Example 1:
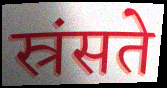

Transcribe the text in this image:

स्रंसते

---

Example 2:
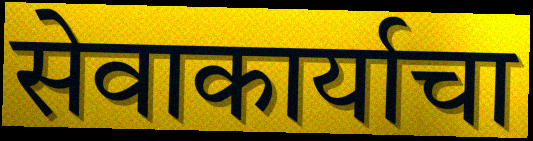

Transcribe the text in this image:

सेवाकार्याचा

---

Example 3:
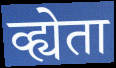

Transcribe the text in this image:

व्ह्येता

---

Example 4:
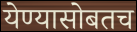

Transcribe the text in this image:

येण्यासोबतच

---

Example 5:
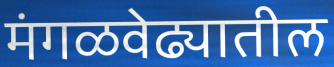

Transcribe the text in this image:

मंगळवेढ्यातील